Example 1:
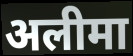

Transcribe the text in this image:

अलीमा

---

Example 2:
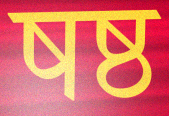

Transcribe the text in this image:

षष्ठ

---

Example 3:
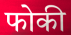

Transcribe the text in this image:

फोकी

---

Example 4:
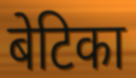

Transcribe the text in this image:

बेटिका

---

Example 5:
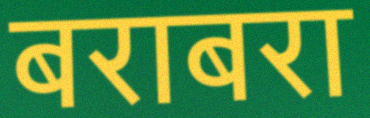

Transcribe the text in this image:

बराबरा